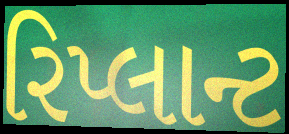
રિપ્લાન્ટ